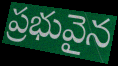
ప్రభువైన